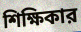
শিক্ষিকার